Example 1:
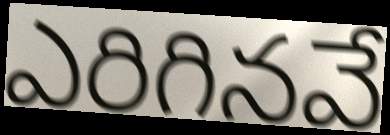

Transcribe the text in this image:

ఎరిగినవే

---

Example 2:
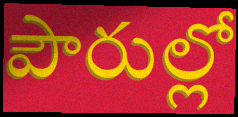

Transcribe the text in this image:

పౌరుల్లో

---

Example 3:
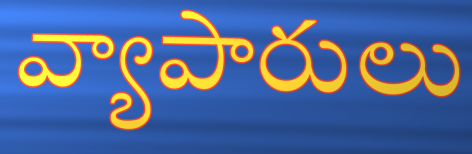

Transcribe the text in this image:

వ్యాపారులు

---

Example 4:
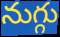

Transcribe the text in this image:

నుగ్గు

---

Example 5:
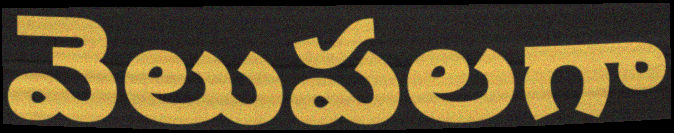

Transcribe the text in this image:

వెలుపలగా